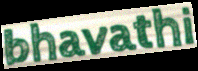
bhavathi